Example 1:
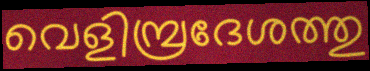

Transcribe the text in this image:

വെളിമ്പ്രദേശത്തു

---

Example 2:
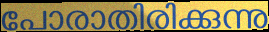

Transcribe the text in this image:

പോരാതിരിക്കുന്നു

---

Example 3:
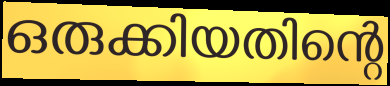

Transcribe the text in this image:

ഒരുക്കിയതിന്റെ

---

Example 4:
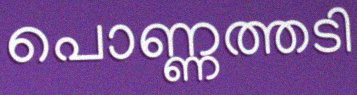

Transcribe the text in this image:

പൊണ്ണത്തടി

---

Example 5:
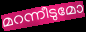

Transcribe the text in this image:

മറന്നീടുമോ